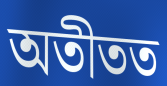
অতীতত